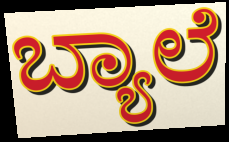
ಬ್ಯಾಲೆ